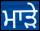
ਮਾੜੇ